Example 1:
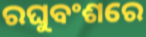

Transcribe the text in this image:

ରଘୁବଂଶରେ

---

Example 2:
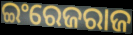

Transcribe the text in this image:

ଇଂରେଜରାଜ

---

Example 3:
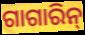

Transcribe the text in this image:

ଗାଗାରିନ୍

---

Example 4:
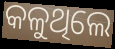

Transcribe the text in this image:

କଳୁଥିଲେ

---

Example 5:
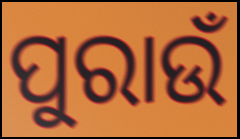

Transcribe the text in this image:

ପୁରାଉଁ